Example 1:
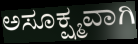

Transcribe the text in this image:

ಅಸೂಕ್ಷ್ಮವಾಗಿ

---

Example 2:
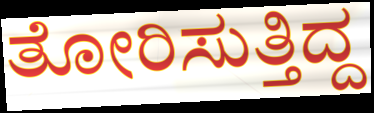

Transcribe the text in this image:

ತೋರಿಸುತ್ತಿದ್ದ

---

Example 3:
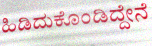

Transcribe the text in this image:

ಹಿಡಿದುಕೊಂಡಿದ್ದೇನೆ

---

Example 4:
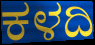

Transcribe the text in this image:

ಕಳದಿ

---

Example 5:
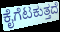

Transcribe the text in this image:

ಕೈಗೆಟಕುತ್ತದೆ